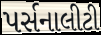
પર્સનાલીટી